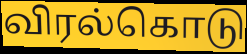
விரல்கொடு